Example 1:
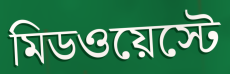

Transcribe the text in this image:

মিডওয়েস্টে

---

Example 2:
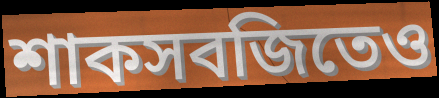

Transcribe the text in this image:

শাকসবজিতেও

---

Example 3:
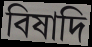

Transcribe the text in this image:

বিষাদি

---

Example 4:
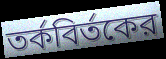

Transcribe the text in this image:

তর্কবির্তকের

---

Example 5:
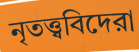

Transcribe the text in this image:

নৃতত্ত্ববিদেরা